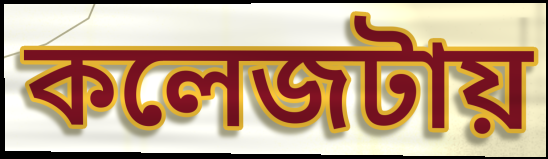
কলেজটায়